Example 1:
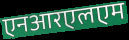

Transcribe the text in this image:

एनआरएलएम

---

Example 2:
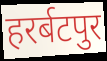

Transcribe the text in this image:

हरर्बटपुर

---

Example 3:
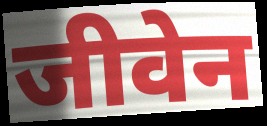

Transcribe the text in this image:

जीवेन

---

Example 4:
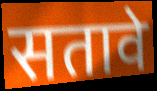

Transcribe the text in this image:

सतावे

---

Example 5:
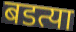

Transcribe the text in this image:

बडत्या